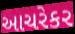
આચરેકર